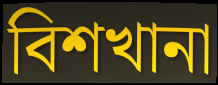
বিশখানা